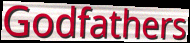
Godfathers